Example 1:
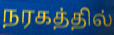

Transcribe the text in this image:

நரகத்தில்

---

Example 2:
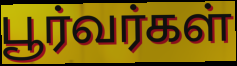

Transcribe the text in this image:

பூர்வர்கள்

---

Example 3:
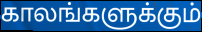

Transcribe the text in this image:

காலங்களுக்கும்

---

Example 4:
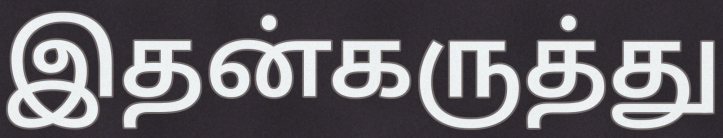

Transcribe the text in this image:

இதன்கருத்து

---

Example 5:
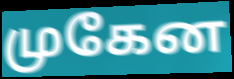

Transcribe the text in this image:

முகேன